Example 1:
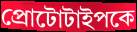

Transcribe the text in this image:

প্রোটোটাইপকে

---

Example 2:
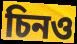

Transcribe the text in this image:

চিনও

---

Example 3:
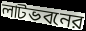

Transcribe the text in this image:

লাটভবনের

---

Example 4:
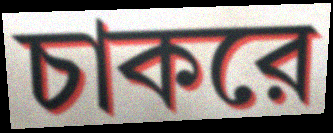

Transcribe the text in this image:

চাকরে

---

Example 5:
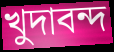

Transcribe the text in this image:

খুদাবন্দ